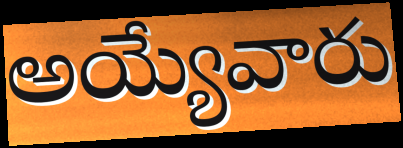
అయ్యేవారు